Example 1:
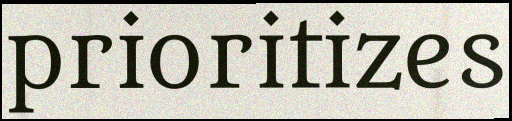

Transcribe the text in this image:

prioritizes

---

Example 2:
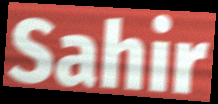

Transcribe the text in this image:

Sahir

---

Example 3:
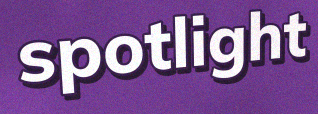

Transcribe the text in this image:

spotlight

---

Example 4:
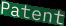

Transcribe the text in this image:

Patent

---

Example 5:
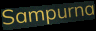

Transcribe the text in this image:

Sampurna